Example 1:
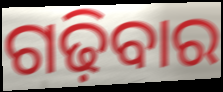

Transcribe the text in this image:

ଗଢ଼ିବାର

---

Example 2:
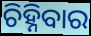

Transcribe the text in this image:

ଚିହ୍ନିବାର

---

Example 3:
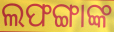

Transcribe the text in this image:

ଲଫଙ୍ଗାଙ୍କ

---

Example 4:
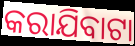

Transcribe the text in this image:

କରାଯିବାଟା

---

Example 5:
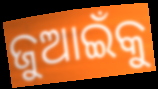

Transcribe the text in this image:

ଜୁଆଇଁକୁ